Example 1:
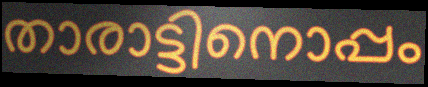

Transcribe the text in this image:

താരാട്ടിനൊപ്പം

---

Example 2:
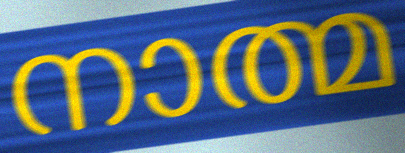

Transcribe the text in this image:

നാത്മ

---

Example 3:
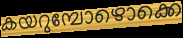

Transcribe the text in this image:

കയറുമ്പോഴൊക്കെ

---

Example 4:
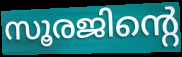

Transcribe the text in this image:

സൂരജിന്റെ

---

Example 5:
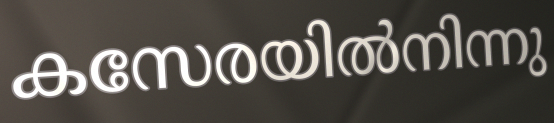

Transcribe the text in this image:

കസേരയിൽനിന്നു